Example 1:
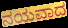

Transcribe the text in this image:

ನಯವಾದ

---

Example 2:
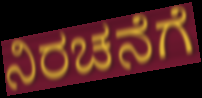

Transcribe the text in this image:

ನಿರಚನೆಗೆ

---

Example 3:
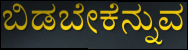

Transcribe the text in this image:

ಬಿಡಬೇಕೆನ್ನುವ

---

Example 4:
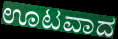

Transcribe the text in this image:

ಊಟವಾದ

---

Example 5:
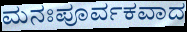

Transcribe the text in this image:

ಮನಃಪೂರ್ವಕವಾದ